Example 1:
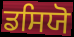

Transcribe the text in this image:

ਡਸਿਯੋ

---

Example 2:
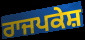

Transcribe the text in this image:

ਰਾਜਪਕੇਸ਼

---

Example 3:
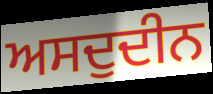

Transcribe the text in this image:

ਅਸਦੁਦੀਨ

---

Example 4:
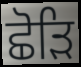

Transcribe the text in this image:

ਛੋੜਿ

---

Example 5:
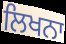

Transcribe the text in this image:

ਲਿਖਨਾ